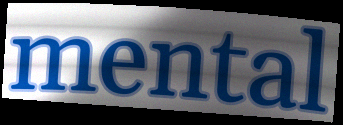
mental